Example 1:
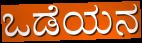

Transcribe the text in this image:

ಒಡೆಯನ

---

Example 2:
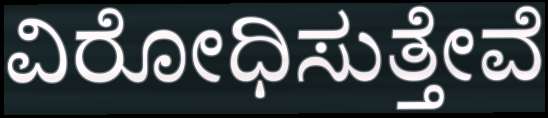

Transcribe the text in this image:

ವಿರೋಧಿಸುತ್ತೇವೆ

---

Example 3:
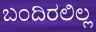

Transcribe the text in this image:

ಬಂದಿರಲಿಲ್ಲ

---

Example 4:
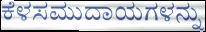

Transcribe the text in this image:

ಕೆಳಸಮುದಾಯಗಳನ್ನು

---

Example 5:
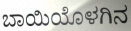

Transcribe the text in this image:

ಬಾಯಿಯೊಳಗಿನ